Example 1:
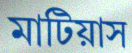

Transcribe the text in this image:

মাটিয়াস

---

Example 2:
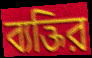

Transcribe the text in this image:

ব্যক্তির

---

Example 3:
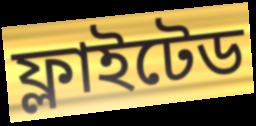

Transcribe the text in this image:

ফ্লাইটেড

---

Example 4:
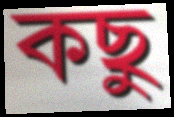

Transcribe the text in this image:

কছু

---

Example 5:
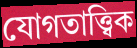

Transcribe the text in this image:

যোগতাত্ত্বিক